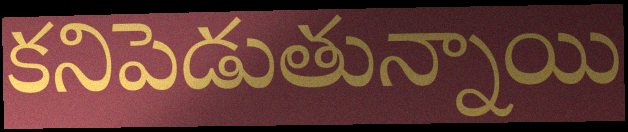
కనిపెడుతున్నాయి